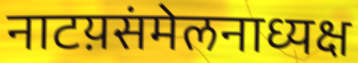
नाटय़संमेलनाध्यक्ष